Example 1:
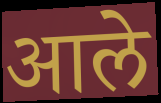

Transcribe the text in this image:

आले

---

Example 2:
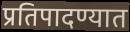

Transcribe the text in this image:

प्रतिपादण्यात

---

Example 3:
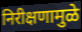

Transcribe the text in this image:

निरीक्षणामुळे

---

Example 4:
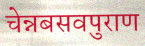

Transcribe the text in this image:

चेन्नबसवपुराण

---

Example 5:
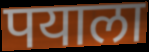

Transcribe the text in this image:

पयाला